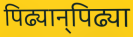
पिढ्यान्‌पिढ्या